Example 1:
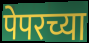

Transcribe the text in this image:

पेपरच्या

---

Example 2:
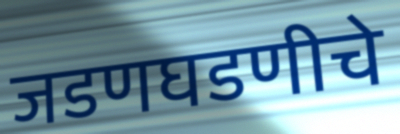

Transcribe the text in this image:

जडणघडणीचे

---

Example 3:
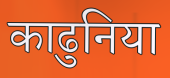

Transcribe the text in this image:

काढुनिया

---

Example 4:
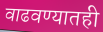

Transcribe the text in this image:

वाढवण्यातही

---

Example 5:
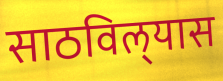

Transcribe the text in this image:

साठविल्यास